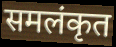
समलंकृत